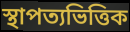
স্থাপত্যভিত্তিক